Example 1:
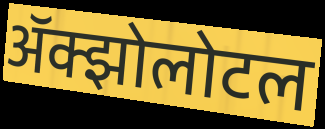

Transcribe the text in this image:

ॲक्झोलोटल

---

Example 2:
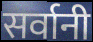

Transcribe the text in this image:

सर्वानी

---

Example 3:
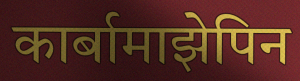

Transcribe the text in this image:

कार्बामाझेपिन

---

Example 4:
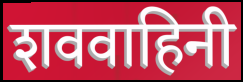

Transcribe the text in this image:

शववाहिनी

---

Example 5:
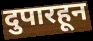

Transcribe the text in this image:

दुपारहून